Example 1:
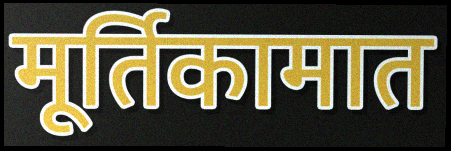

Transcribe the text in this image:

मूर्तिकामात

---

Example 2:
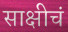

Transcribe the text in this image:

साक्षीचं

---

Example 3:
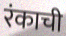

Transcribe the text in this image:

रंकाची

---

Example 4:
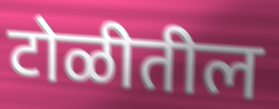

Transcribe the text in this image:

टोळीतील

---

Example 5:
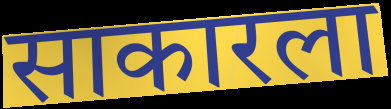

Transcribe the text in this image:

साकारला